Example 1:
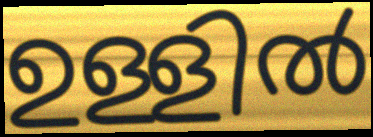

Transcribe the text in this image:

ഉള്ളിൽ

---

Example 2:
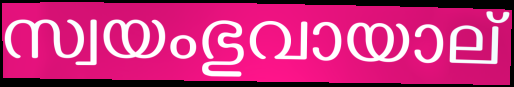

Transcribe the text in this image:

സ്വയംഭുവായാല്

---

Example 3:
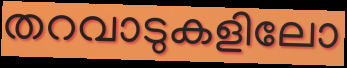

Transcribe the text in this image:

തറവാടുകളിലോ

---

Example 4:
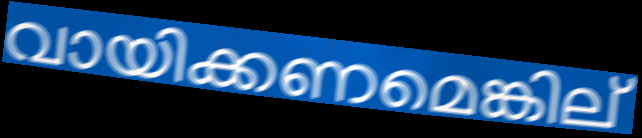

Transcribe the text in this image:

വായിക്കണമെങ്കില്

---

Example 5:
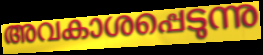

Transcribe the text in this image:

അവകാശപ്പെടുന്നു